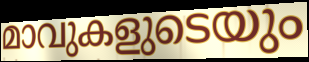
മാവുകളുടെയും